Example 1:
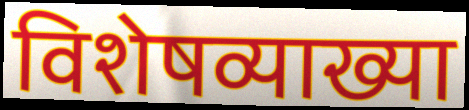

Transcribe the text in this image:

विशेषव्याख्या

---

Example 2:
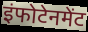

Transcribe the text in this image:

इंफोटेनमेंट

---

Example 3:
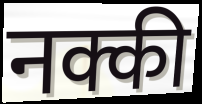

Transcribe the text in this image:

नक्की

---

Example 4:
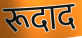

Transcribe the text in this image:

रूदाद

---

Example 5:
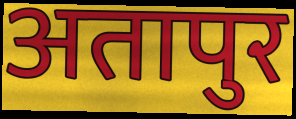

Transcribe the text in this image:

अतापुर